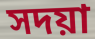
সদয়া